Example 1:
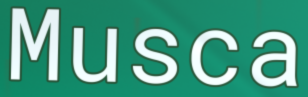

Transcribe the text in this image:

Musca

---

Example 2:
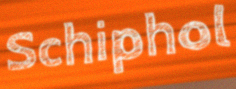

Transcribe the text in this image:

Schiphol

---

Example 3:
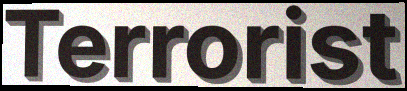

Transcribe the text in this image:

Terrorist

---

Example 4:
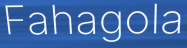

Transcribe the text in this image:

Fahagola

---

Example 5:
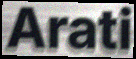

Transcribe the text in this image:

Arati